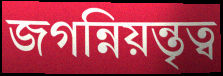
জগন্নিয়ন্তৃত্ব